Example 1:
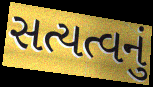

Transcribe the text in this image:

સત્યત્વનું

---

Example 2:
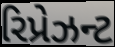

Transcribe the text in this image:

રિપ્રેઝન્ટ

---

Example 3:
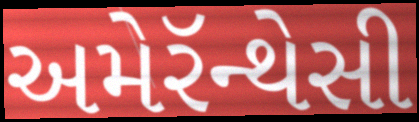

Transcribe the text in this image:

અમેરૅન્થેસી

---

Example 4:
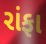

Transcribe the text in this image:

રાંફા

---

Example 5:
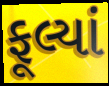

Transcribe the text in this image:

ફૂલ્યાં